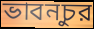
ভাবনচুর